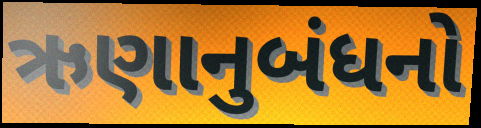
ઋણાનુબંધનો